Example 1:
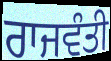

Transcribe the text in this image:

ਰਾਜਵੰਤੀ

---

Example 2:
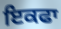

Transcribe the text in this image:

ਇਕਫਾ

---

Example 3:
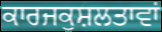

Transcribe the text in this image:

ਕਾਰਜਕੁਸ਼ਲਤਾਵਾਂ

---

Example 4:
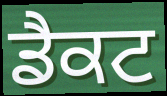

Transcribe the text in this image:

ਡੈਕਟ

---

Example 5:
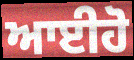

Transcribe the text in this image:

ਆਈਹੋ